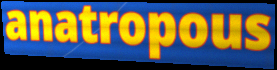
anatropous